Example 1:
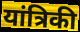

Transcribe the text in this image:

यांत्रिकी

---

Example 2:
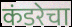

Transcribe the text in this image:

कंडरेचा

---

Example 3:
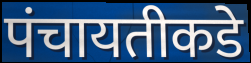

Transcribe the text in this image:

पंचायतीकडे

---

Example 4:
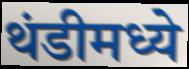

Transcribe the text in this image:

थंडीमध्ये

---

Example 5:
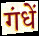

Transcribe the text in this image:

गंधें